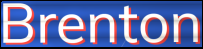
Brenton